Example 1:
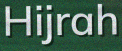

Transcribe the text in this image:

Hijrah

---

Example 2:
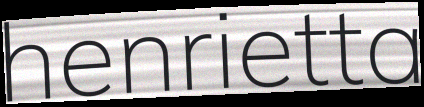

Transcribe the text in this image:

henrietta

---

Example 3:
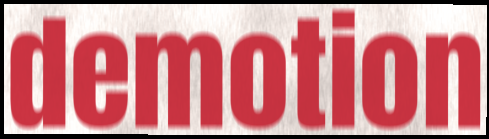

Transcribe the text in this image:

demotion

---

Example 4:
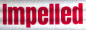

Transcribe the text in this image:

Impelled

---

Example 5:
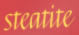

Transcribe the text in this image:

steatite